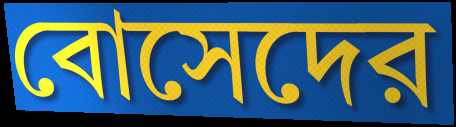
বোসেদের